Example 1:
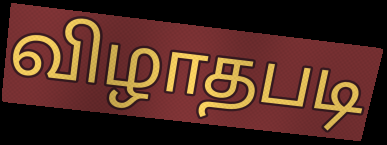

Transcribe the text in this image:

விழாதபடி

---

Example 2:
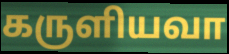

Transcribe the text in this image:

கருளியவா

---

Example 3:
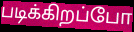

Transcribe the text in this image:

படிக்கிறப்போ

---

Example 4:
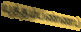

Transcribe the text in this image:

யுத்தம்பண்ணப்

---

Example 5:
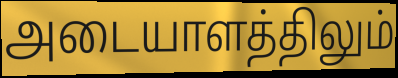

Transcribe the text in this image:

அடையாளத்திலும்